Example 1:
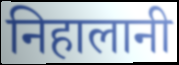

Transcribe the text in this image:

निहालानी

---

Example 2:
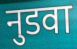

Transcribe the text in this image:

नुडवा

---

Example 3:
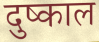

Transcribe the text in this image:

दुष्काल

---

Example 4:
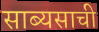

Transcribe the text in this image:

साब्यसाची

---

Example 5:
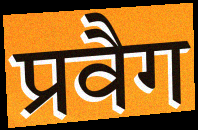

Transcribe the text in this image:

प्रवैग